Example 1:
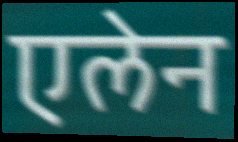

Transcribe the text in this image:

एलेन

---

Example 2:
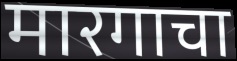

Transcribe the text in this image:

मारगाचा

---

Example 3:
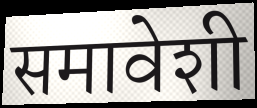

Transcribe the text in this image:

समावेशी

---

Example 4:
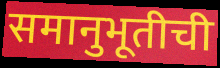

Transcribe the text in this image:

समानुभूतीची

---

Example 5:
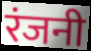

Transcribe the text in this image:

रंजनी